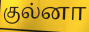
குல்னா